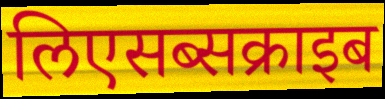
लिएसब्सक्राइब